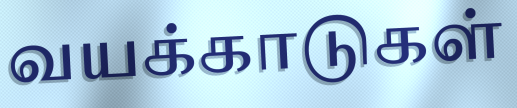
வயக்காடுகள்